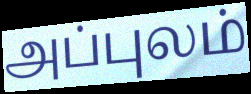
அப்புலம்